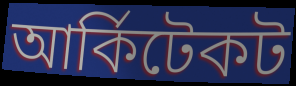
আর্কিটেকট